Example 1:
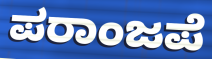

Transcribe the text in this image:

ಪರಾಂಜಪೆ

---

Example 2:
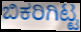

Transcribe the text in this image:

ಬಿಕರಿಗಿಟ್ಟ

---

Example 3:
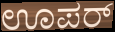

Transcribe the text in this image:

ಊಪರ್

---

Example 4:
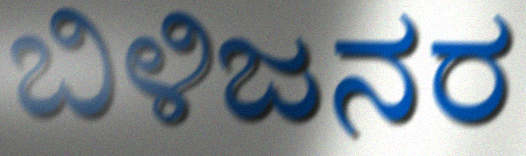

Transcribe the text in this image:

ಬಿಳಿಜನರ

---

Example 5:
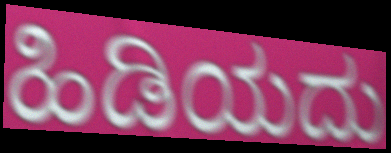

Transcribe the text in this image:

ಹಿಡಿಯದು